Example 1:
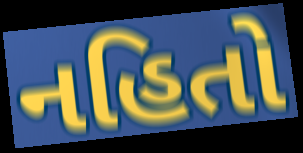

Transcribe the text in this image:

નહિતો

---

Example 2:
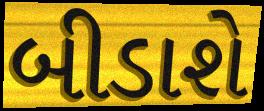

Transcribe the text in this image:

બીડાશે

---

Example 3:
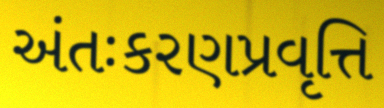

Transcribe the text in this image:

અંતઃકરણપ્રવૃત્તિ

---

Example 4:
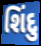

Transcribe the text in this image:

શિંદુ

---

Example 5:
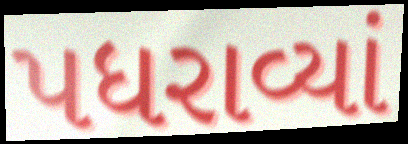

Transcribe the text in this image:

પધરાવ્યાં